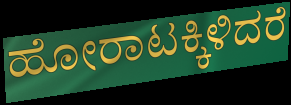
ಹೋರಾಟಕ್ಕಿಳಿದರೆ